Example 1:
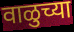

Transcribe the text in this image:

वाळुच्या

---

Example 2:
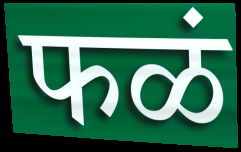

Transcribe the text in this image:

फळं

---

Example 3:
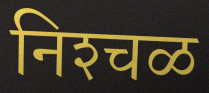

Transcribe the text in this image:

निश्चळ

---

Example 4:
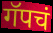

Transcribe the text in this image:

गॅपचं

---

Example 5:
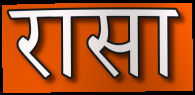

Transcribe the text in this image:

रासा